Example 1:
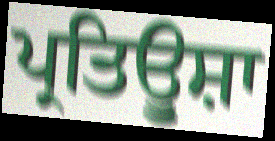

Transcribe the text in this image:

ਪ੍ਰਤਿਊਸ਼ਾ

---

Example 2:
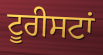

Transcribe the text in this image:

ਟੂਰੀਸਟਾਂ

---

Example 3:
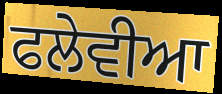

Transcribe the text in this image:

ਫਲੇਵੀਆ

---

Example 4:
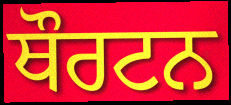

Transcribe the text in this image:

ਥੌਰਟਨ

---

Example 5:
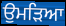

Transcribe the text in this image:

ਉਮੜਿਆ